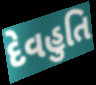
દેવહુતિ